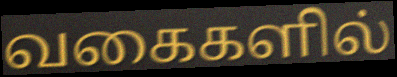
வகைகளில்